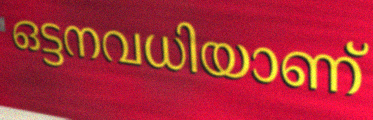
ഒട്ടനവധിയാണ്